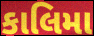
કાલિમા